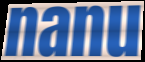
nanu